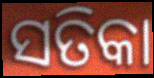
ସତିକା